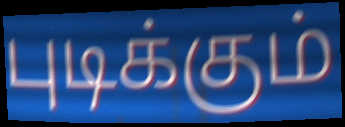
புடிக்கும்